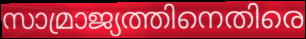
സാമ്രാജ്യത്തിനെതിരെ